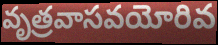
వృత్రవాసవయోరివ